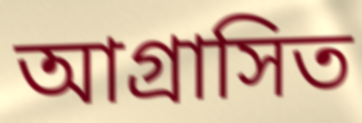
আগ্রাসিত